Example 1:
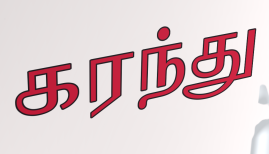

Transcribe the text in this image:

கரந்து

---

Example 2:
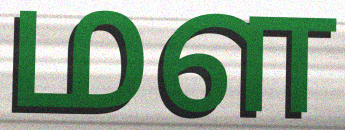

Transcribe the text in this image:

மள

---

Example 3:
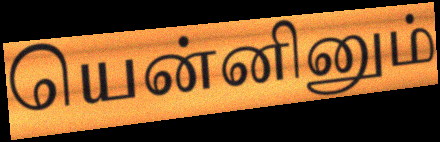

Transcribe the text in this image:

யென்னினும்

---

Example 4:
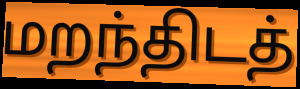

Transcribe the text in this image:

மறந்திடத்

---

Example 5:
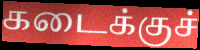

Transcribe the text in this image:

கடைக்குச்